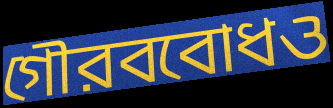
গৌরববোধও